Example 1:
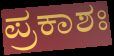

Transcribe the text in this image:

ಪ್ರಕಾಶಃ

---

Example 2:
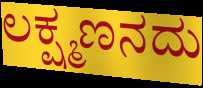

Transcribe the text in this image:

ಲಕ್ಷ್ಮಣನದು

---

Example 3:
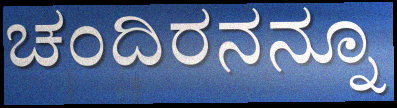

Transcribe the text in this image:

ಚಂದಿರನನ್ನೂ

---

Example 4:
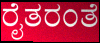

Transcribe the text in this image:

ರೈತರಂತೆ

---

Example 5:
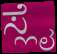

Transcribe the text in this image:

ಸ್ಲೈ